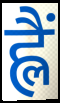
ह्लैं